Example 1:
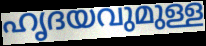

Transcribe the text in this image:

ഹൃദയവുമുള്ള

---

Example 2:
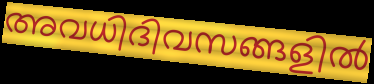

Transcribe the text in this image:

അവധിദിവസങ്ങളിൽ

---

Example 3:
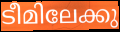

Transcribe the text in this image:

ടീമിലേക്കു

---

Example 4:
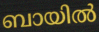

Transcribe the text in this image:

ബായിൽ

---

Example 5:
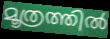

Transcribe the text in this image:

മൂത്രത്തിൽ